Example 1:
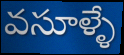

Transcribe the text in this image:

వసూళ్ళే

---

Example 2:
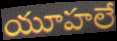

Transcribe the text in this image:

యూహలే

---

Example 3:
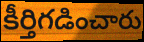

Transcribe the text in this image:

కీర్తిగడించారు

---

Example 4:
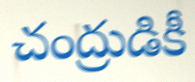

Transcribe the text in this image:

చంద్రుడికీ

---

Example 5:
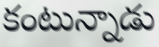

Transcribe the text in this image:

కంటున్నాడు